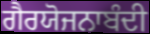
ਗੈਰਯੋਜਨਾਬੰਦੀ